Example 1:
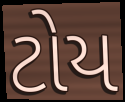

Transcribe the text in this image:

ટોય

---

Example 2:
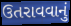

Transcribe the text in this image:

ઉતરાવવાનું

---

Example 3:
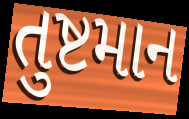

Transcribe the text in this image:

તુષ્ટમાન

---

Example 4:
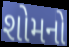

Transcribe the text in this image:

શોમનો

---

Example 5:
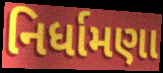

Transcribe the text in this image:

નિર્ધામણા